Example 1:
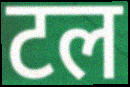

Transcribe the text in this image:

टल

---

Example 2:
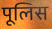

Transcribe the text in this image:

पूलिस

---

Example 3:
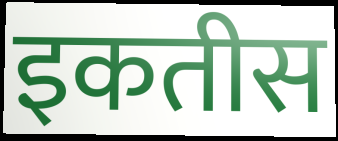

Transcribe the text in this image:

इकतीस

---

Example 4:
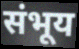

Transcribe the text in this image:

संभूय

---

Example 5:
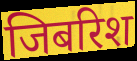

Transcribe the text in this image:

जिबरिश